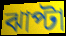
ঝাপ্টা